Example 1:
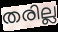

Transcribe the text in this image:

തരില്ല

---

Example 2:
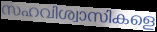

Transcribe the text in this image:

സഹവിശ്വാസികളെ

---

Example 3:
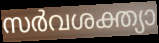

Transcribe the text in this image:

സർവശക്ത്യാ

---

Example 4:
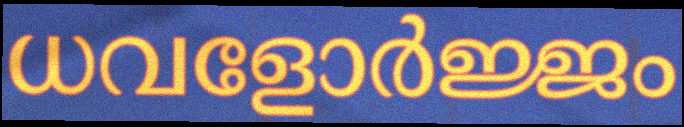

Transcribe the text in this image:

ധവളോർജ്ജം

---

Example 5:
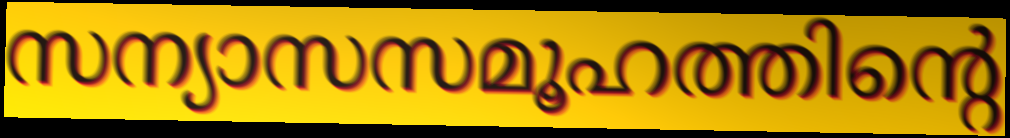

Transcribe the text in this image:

സന്യാസസമൂഹത്തിന്റെ